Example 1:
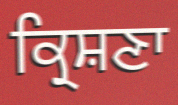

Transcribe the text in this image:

ਕ੍ਰਿਸ਼ਣਾ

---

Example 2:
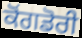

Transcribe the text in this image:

ਕੋਂਗਡੋਰੀ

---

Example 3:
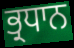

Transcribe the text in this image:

ਭ੍ਰਧਾਨ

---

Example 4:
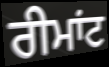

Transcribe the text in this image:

ਰੀਮਾਂਟ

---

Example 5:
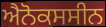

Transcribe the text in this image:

ਐਨੋਕਸਸੀਨ